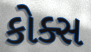
કોક્સ